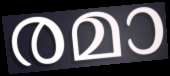
രമാ